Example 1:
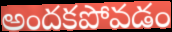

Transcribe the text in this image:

అందకపోవడం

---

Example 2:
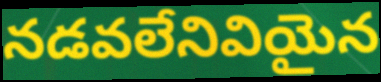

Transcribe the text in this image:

నడవలేనివియైన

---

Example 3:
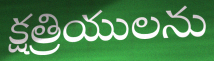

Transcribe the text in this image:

క్షత్రియులను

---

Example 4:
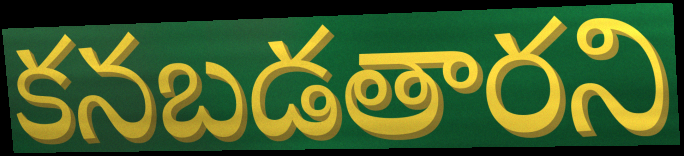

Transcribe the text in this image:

కనబడతారని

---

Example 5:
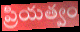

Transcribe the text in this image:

ప్రియత్వం